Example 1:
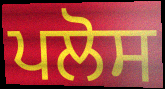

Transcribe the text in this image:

ਪਲੋਸ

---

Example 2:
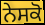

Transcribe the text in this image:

ਨੇਸਕੋ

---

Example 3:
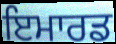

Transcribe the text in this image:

ਇਮਾਰਡ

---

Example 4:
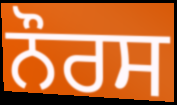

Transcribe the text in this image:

ਨੌਰਸ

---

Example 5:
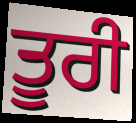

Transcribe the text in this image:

ਤੂਰੀ